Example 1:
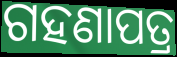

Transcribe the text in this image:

ଗହଣାପତ୍ର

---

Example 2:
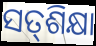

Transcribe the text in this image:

ସତ୍‌ଶିକ୍ଷା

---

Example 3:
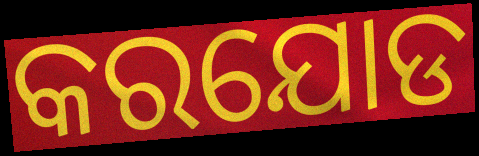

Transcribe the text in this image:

କରଯୋଡ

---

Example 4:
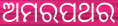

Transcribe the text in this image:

ଅମରପଥର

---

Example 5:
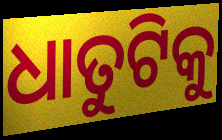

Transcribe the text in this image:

ଧାତୁଟିକୁ